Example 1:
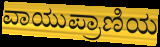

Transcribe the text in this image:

ವಾಯುಪ್ರಾಣಿಯ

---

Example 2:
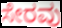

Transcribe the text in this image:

ಸೇರವು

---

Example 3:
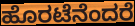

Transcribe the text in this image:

ಹೊರಟೆನೆಂದರೆ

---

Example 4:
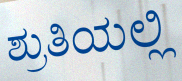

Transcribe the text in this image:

ಶ್ರುತಿಯಲ್ಲಿ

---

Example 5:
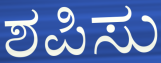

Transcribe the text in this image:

ಶಪಿಸು